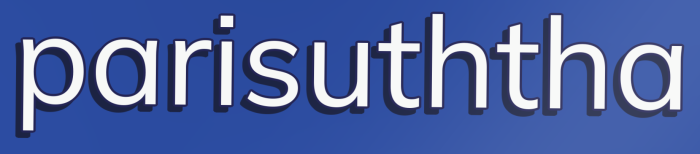
parisuththa